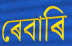
ৰেবাৰি